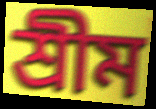
শ্রীম